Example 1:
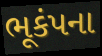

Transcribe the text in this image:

ભૂકંપના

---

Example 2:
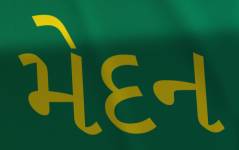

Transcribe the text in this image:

મેદન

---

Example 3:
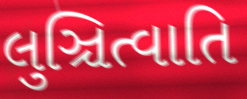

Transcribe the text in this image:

લુઞ્ચિત્વાતિ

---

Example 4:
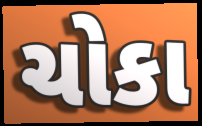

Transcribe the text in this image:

ચોકા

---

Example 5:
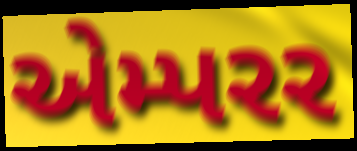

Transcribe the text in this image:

એમ્પરર